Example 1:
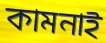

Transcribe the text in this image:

কামনাই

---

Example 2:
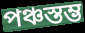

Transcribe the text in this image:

পঞ্চস্তম্ভ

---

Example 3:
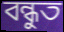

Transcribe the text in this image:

বন্ধুত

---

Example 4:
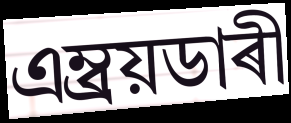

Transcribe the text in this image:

এম্ব্ৰয়ডাৰী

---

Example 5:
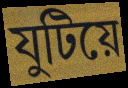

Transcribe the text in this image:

যুটিয়ে